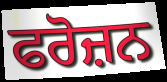
ਫਰੋਜ਼ਨ